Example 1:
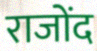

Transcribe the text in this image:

राजोंद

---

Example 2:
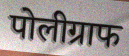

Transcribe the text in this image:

पोलीग्राफ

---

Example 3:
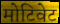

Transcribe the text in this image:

मोटिवेट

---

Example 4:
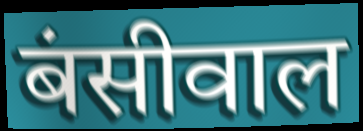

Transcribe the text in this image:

बंसीवाल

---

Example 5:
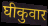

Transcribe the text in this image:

घीकुवार